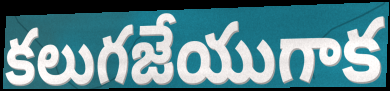
కలుగజేయుగాక